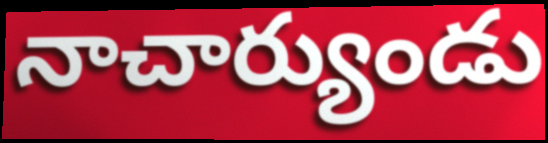
నాచార్యుండు